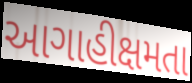
આગાહીક્ષમતા